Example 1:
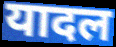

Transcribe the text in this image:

यादल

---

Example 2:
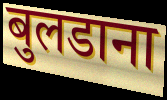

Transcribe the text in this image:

बुलडाना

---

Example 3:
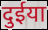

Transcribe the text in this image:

दुईया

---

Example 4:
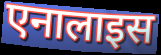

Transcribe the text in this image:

एनालाइस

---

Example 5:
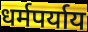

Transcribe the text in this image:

धर्मपर्याय